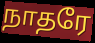
நாதரே